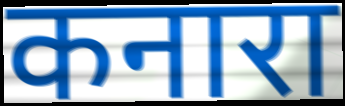
कनारा